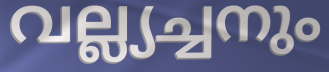
വല്ല്യച്ചനും